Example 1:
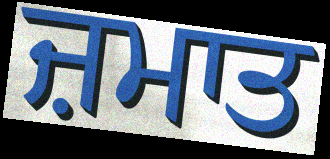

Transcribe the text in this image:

ਜ਼ਮਾਤ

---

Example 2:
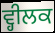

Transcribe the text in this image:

ਵ੍ਹੀਲਕ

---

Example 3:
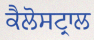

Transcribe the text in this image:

ਕੈਲੋਸਟ੍ਰਾਲ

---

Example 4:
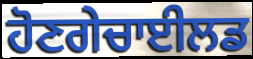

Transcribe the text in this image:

ਹੋਣਗੇਚਾਈਲਡ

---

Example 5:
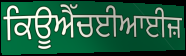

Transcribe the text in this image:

ਕਿਊਐੱਚਈਆਈਜ਼